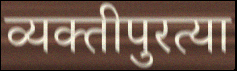
व्यक्तीपुरत्या